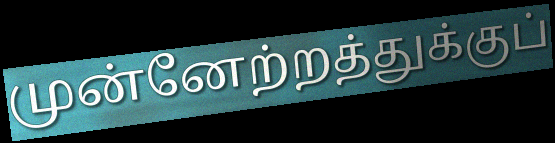
முன்னேற்றத்துக்குப்